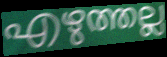
എഴുത്തല്ല